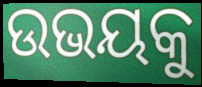
ଉଭୟକୁ